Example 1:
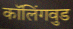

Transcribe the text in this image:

कॉलिंगवुड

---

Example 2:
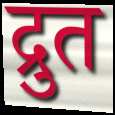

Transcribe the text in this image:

द्रुत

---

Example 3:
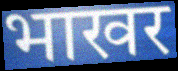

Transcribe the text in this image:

भाखर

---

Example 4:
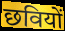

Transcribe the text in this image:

छवियों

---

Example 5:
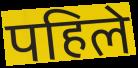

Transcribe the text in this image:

पहिले